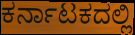
ಕರ್ನಾಟಕದಲ್ಲಿ